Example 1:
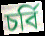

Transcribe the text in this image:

চৰ্বি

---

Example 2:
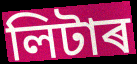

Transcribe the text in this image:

লিটাৰ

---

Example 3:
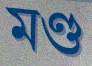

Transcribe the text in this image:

মণ্ড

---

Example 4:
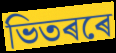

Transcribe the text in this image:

ভিতৰৰে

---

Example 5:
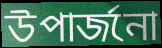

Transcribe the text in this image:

উপাৰ্জনো